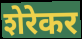
शेरेकर